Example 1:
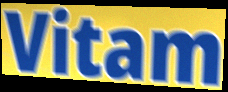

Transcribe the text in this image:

Vitam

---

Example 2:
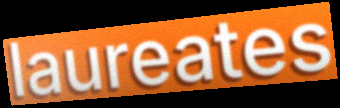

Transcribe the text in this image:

laureates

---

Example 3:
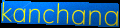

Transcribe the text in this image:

kanchana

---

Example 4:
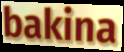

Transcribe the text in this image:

bakina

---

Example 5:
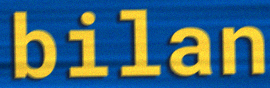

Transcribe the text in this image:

bilan